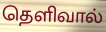
தெளிவால்